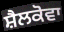
ਸ਼ੈਲਕੋਵਾ